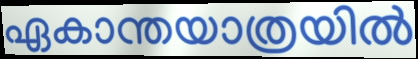
ഏകാന്തയാത്രയിൽ